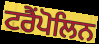
ਟਰੈਂਪੋਲਿਨ